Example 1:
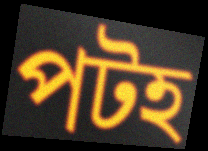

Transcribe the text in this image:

পটহ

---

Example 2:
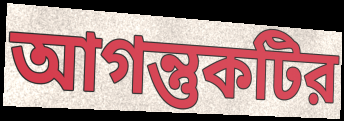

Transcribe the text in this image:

আগন্তুকটির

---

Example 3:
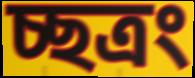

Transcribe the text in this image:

চ্ছত্রং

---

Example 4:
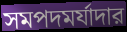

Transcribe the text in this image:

সমপদমর্যাদার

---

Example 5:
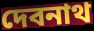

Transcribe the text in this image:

দেবনাথ